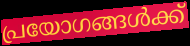
പ്രയോഗങ്ങൾക്ക്